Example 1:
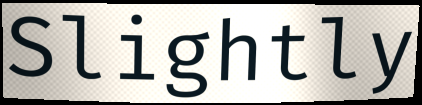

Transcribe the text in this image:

Slightly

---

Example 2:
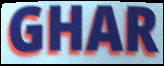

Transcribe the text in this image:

GHAR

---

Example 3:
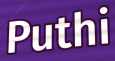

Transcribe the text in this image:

Puthi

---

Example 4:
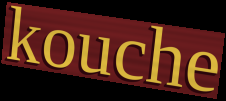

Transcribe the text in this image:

kouche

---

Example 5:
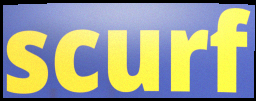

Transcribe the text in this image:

scurf